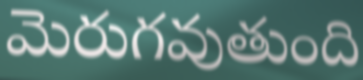
మెరుగవుతుంది